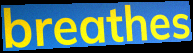
breathes